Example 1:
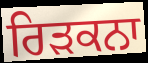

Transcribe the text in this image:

ਰਿੜਕਨਾ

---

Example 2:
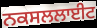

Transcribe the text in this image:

ਨਕਸਲਲਾਈਟ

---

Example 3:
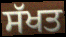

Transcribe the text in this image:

ਸੱਖਤ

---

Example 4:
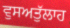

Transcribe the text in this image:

ਵੁਸਅਤੁੱਲਾਹ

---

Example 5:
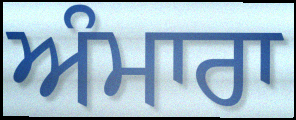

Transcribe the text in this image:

ਅੰਮਾਰਾ